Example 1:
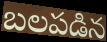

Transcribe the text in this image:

బలపడిన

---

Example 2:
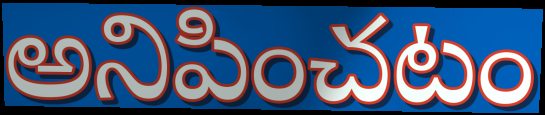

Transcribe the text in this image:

అనిపించటం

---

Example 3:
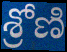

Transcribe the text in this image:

శ్రోణి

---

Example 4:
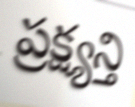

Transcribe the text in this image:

ప్రక్ష్యన్తి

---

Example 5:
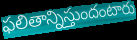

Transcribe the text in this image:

ఫలితాన్నిస్తుందంటారు